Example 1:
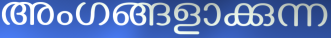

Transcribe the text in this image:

അംഗങ്ങളാക്കുന്ന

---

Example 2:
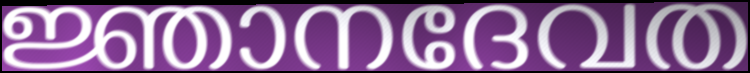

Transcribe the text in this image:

ജ്ഞാനദേവത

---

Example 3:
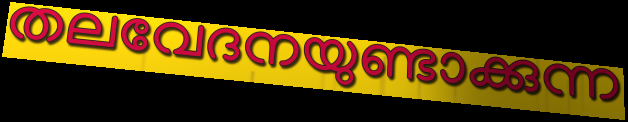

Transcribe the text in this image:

തലവേദനയുണ്ടാക്കുന്ന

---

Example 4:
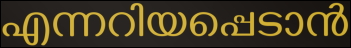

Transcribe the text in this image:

എന്നറിയപ്പെടാൻ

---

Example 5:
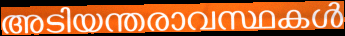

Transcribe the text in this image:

അടിയന്തരാവസ്ഥകൾ